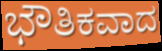
ಭೌತಿಕವಾದ